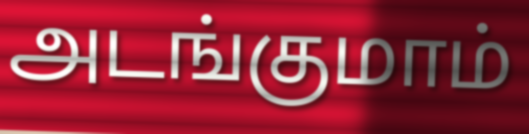
அடங்குமாம்